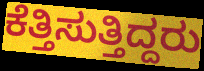
ಕೆತ್ತಿಸುತ್ತಿದ್ದರು